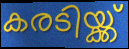
കരടിയ്ക്ക്